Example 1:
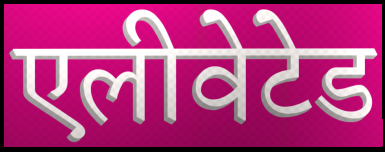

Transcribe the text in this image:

एलीवेटेड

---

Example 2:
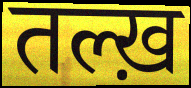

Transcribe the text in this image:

तल्ख़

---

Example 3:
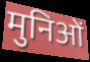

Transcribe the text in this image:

मुनिओं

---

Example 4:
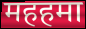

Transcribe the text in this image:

महहमा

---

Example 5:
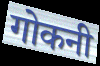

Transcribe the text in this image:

गोकनी